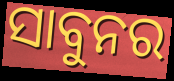
ସାବୁନର